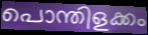
പൊന്തിളക്കം